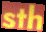
sth